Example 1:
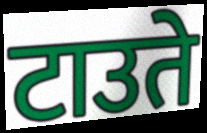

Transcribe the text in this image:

टाउते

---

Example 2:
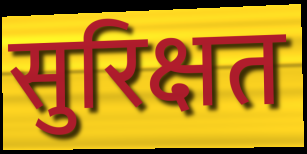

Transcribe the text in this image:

सुरिक्षत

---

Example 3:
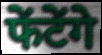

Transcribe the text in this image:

फेंटेंगे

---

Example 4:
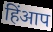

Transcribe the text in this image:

हिंआप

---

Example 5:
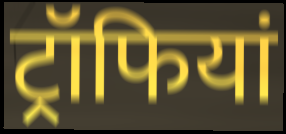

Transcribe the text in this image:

ट्रॉफियां